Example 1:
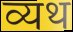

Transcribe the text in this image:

व्यथ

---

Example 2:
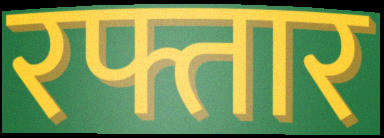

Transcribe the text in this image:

रफ्‍तार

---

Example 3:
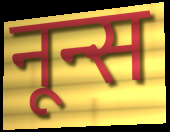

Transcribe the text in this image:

नून्स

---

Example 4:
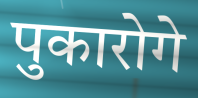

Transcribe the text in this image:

पुकारोगे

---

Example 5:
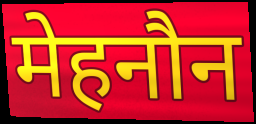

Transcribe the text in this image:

मेहनौन